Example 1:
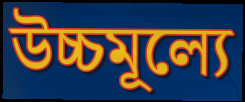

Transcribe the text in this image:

উচ্চমূল্যে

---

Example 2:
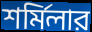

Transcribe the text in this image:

শর্মিলার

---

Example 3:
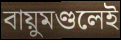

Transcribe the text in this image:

বায়ুমণ্ডলেই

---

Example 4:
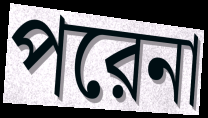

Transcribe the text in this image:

পরেনা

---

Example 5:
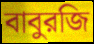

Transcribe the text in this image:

বাবুরজি